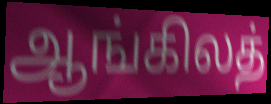
ஆங்கிலத்